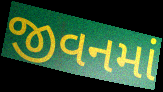
જીવનમાં